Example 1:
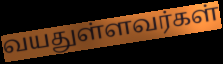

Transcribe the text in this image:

வயதுள்ளவர்கள்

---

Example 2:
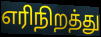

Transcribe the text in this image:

எரிநிறத்து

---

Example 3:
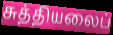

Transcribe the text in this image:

சுத்தியலைப்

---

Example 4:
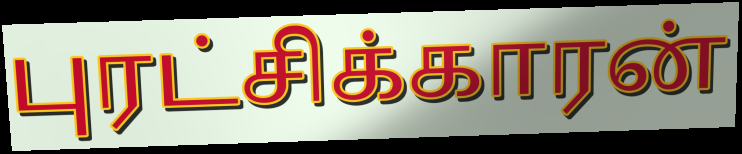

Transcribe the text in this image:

புரட்சிக்காரன்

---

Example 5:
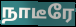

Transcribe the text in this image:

நாடீரே